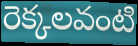
రెక్కలవంటి